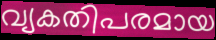
വ്യകതിപരമായ